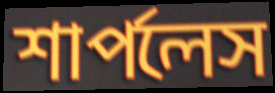
শার্পলেস